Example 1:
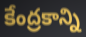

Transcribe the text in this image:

కేంద్రకాన్ని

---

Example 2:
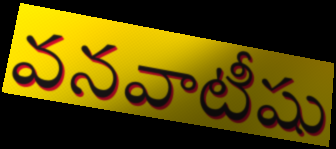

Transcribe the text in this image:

వనవాటీషు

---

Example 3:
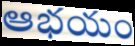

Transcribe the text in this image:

ఆభయం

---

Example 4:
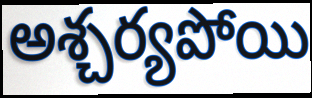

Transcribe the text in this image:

అశ్చర్యపోయి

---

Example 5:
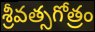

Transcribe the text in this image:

శ్రీవత్సగోత్రం